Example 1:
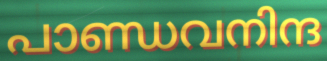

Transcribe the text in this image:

പാണ്ഡവനിന്ദ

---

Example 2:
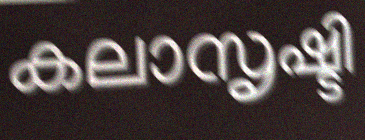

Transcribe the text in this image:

കലാസൃഷ്ടി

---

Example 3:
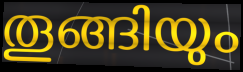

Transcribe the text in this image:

തൂങ്ങിയും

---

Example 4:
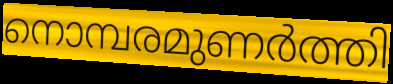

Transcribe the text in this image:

നൊമ്പരമുണർത്തി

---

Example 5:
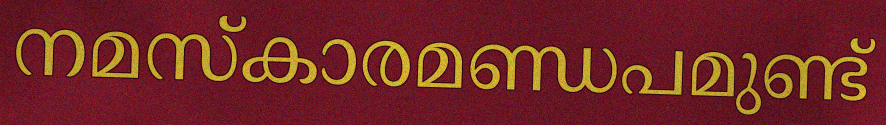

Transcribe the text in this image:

നമസ്കാരമണ്ഡപമുണ്ട്